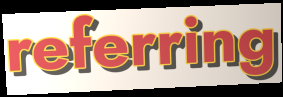
referring